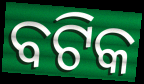
ବଟିକ